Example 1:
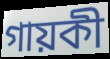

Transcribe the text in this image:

গায়কী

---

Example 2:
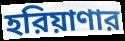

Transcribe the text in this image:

হরিয়াণার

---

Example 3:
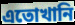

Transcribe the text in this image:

এতোখানি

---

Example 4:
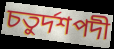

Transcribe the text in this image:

চতুর্দশপদী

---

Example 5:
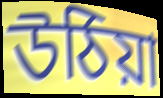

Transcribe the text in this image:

উঠিয়া